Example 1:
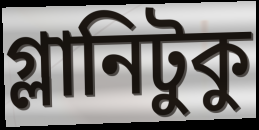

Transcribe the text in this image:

গ্লানিটুকু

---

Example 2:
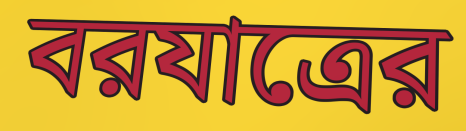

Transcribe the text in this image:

বরযাত্রের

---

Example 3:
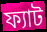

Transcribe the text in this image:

ফ্যাট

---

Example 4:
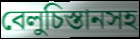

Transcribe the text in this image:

বেলুচিস্তানসহ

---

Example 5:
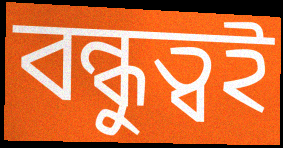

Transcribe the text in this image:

বন্ধুত্বই